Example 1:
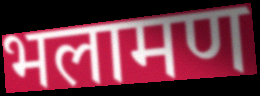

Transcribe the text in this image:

भलामण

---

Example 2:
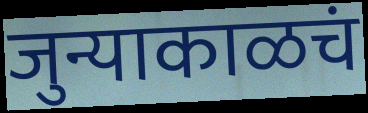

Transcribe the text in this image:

जुन्याकाळचं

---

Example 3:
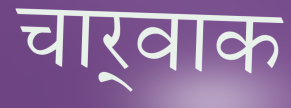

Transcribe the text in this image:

चार्वाक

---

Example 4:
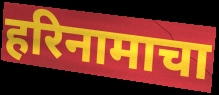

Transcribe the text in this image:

हरिनामाचा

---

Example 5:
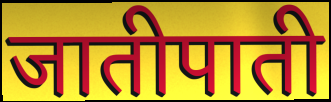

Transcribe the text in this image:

जातीपाती